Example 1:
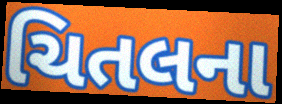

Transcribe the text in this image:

ચિતલના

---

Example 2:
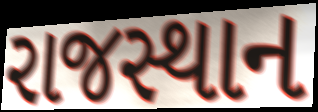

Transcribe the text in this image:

રાજસ્થાન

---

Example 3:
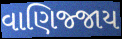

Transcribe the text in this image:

વાણિજ્જાય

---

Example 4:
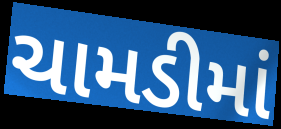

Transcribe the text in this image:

ચામડીમાં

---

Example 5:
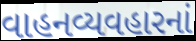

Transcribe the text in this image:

વાહનવ્યવહારનાં